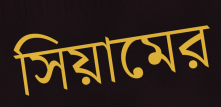
সিয়ামের